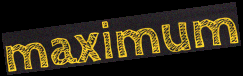
maximum